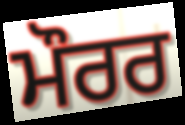
ਮੌਰਰ